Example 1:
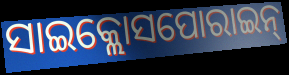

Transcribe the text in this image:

ସାଇକ୍ଲୋସପୋରାଇନ୍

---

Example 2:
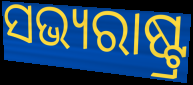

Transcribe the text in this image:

ସଭ୍ୟରାଷ୍ଟ୍ର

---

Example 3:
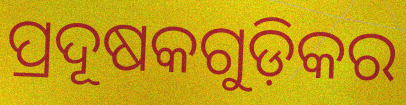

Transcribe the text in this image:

ପ୍ରଦୂଷକଗୁଡ଼ିକର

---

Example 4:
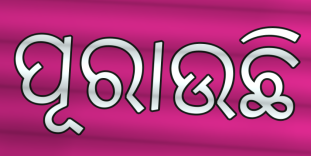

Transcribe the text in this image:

ପୂରାଉଛି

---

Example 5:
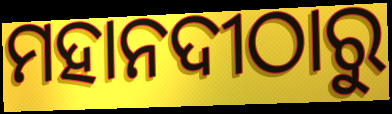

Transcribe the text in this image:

ମହାନଦୀଠାରୁ